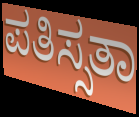
ಪತಿಸ್ಸತಾ